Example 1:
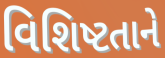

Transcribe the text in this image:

વિશિષ્ટતાને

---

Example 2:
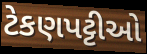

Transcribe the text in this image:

ટેકણપટ્ટીઓ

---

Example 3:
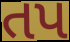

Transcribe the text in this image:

તપ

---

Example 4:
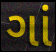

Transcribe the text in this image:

ગાં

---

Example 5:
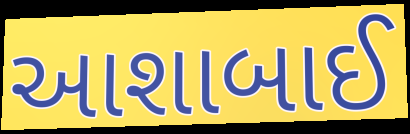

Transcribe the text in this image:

આશાબાઈ